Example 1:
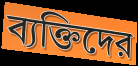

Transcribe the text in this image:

ব্যক্তিদের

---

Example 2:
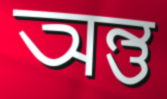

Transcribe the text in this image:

অন্তু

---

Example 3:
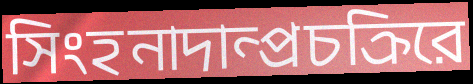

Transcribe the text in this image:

সিংহনাদান্প্রচক্রিরে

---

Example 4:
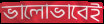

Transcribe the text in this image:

ভালোভাবেই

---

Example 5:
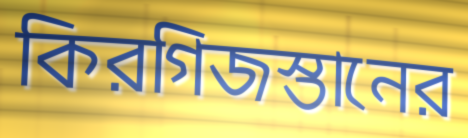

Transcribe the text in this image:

কিরগিজস্তানের